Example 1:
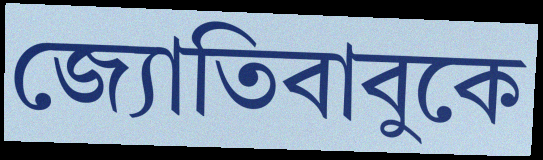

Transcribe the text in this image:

জ্যোতিবাবুকে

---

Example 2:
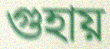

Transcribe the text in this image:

গুহায়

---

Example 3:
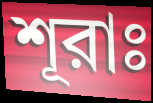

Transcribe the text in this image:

শূরাঃ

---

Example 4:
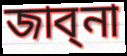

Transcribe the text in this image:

জাব্‌না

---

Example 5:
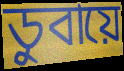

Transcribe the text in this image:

ডুবায়ে